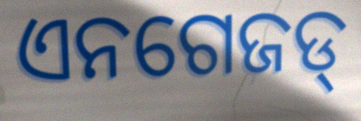
ଏନଗେଜଡ୍